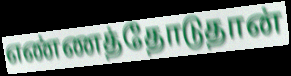
எண்ணத்தோடுதான்